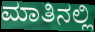
ಮಾತಿನಲ್ಲಿ